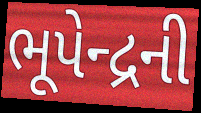
ભૂપેન્દ્રની